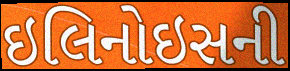
ઇલિનોઇસની